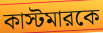
কাস্টমারকে